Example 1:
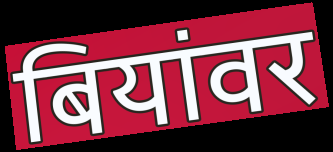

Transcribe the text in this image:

बियांवर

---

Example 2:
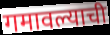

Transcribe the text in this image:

गमावल्याची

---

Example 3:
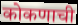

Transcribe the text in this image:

कोकणाची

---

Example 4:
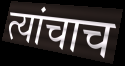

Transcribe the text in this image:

त्यांचाच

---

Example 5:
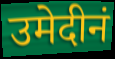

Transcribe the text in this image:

उमेदीनं